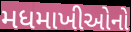
મધમાખીઓનો